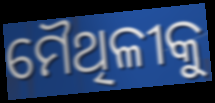
ମୈଥିଳୀକୁ